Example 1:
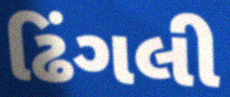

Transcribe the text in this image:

ઢિંગલી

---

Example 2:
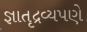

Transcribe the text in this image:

જ્ઞાતૃદ્રવ્યપણે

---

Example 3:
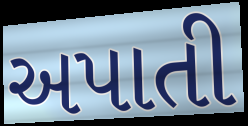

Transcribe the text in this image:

અપાતી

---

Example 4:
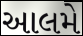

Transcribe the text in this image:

આલમે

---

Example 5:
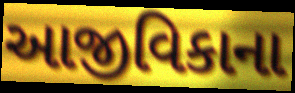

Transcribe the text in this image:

આજીવિકાના